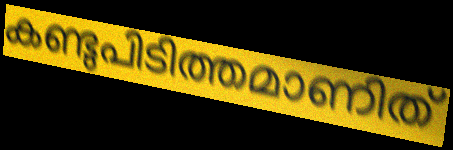
കണ്ടുപിടിത്തമാണിത്